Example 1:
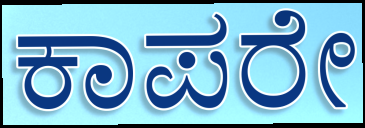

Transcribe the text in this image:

ಕಾಪರೇ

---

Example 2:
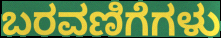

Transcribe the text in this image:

ಬರವಣಿಗೆಗಳು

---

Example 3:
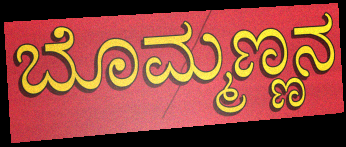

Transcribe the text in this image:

ಬೊಮ್ಮಣ್ಣನ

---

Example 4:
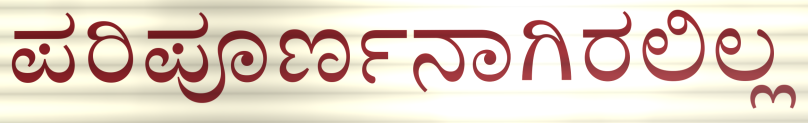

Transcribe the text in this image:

ಪರಿಪೂರ್ಣನಾಗಿರಲಿಲ್ಲ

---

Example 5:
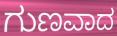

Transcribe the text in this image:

ಗುಣವಾದ